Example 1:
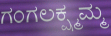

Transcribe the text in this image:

ಗಂಗಲಕ್ಷ್ಮಮ್ಮ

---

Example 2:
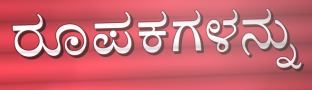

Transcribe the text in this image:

ರೂಪಕಗಳನ್ನು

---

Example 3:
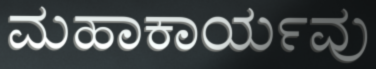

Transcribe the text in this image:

ಮಹಾಕಾರ್ಯವು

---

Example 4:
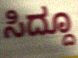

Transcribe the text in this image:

ಸಿದ್ದೂ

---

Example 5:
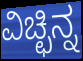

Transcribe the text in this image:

ವಿಚ್ಛಿನ್ನ